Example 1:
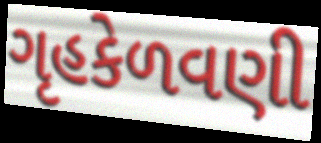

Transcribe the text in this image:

ગૃહકેળવણી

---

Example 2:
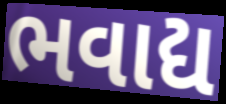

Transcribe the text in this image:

ભવાદ્ય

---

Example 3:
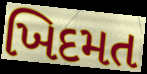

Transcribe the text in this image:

ખિદમત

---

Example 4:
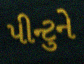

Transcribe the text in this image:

પીન્ટુને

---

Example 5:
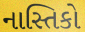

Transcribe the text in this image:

નાસ્તિકો